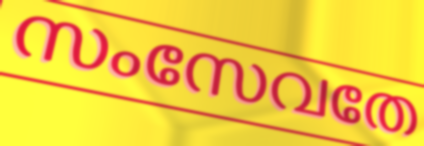
സംസേവതേ